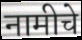
नामीचे